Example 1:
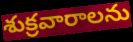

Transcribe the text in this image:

శుక్రవారాలను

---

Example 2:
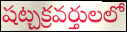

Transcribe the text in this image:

షట్చక్రవర్తులలో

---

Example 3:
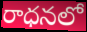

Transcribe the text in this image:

రాధనలో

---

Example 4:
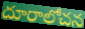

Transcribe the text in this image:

దూరాలోచన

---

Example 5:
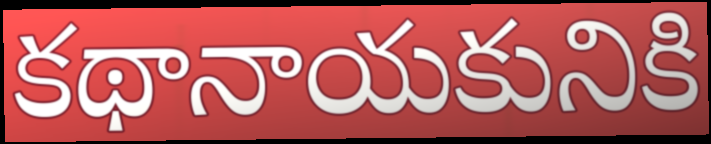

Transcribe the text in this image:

కథానాయకునికి